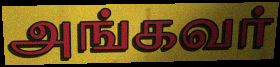
அங்கவர்